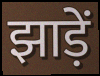
झाड़ें